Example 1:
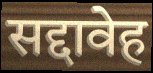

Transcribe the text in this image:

सद्दावेह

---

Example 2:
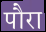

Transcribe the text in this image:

पौरा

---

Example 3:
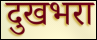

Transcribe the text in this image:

दुखभरा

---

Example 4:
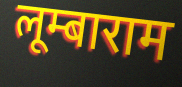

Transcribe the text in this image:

लूम्बाराम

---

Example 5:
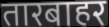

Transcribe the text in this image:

तारबाहर